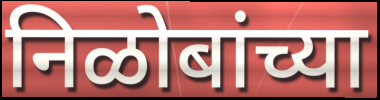
निळोबांच्या